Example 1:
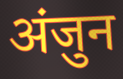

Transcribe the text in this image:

अंजुन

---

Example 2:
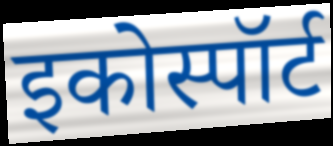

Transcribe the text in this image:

इकोस्पॉर्ट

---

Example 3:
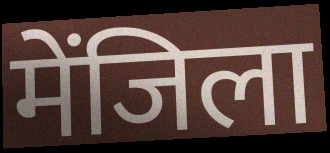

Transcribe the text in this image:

मेंजिला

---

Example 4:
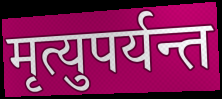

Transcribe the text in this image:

मृत्युपर्यन्त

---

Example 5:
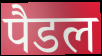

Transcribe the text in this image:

पैडल